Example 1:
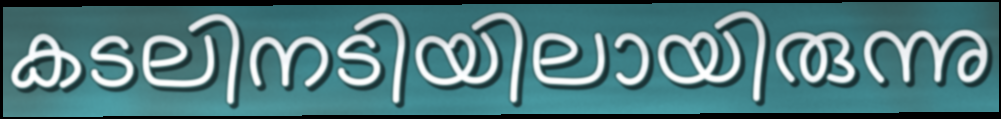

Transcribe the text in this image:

കടലിനടിയിലായിരുന്നു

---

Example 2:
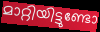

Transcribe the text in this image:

മാറ്റിയിട്ടുണ്ടോ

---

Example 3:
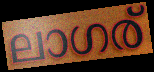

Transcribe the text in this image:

ലാഗര്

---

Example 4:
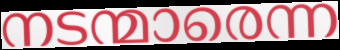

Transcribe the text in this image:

നടന്മാരെന്ന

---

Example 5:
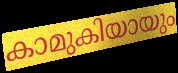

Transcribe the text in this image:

കാമുകിയായും